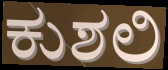
ಕುಶಲಿ